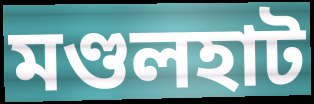
মণ্ডলহাট